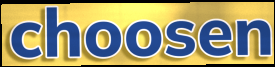
choosen